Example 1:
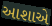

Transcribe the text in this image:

આશાએ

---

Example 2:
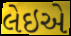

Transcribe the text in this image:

લેઇએ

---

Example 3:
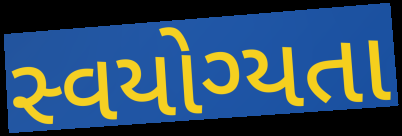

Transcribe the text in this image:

સ્વયોગ્યતા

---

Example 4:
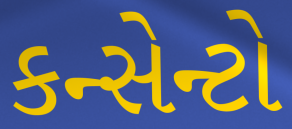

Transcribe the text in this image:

કન્સેન્ટો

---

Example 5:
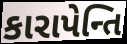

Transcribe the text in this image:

કારાપેન્તિ